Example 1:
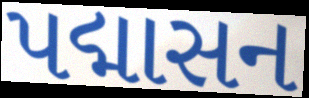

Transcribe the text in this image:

પદ્માસન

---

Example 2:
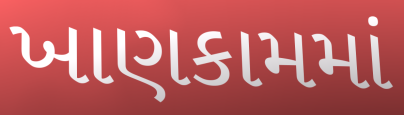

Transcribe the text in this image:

ખાણકામમાં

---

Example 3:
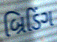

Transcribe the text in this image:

બ્રિડિંગ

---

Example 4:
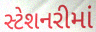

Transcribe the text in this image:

સ્ટેશનરીમાં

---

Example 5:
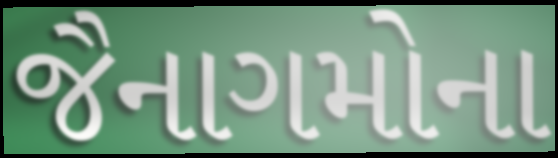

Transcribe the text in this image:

જૈનાગમોના